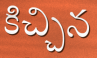
కిచ్చిన